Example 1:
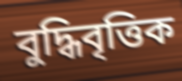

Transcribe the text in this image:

বুদ্ধিবৃত্তিক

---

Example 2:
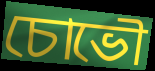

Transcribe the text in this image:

চোভৌ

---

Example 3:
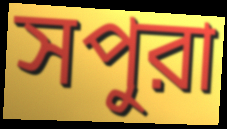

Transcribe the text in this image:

সপুরা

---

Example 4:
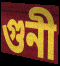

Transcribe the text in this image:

গুনী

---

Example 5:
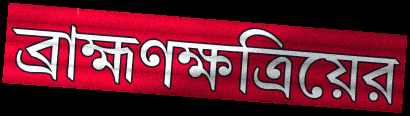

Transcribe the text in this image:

ব্রাহ্মণক্ষত্রিয়ের